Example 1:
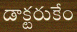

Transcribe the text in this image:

డాక్టరుకేం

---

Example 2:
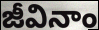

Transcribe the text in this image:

జీవినాం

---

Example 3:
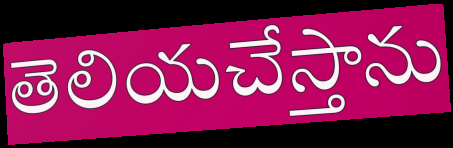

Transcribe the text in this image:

తెలియచేస్తాను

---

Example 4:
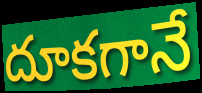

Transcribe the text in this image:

దూకగానే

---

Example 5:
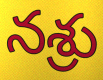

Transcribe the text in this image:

నశ్రు